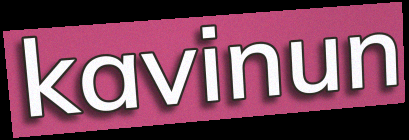
kavinun